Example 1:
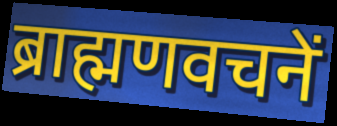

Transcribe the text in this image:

ब्राह्मणवचनें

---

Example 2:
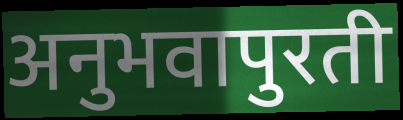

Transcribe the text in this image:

अनुभवापुरती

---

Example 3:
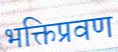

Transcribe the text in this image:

भक्तिप्रवण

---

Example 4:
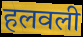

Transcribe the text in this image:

हलवली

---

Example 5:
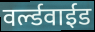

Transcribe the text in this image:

वर्ल्डवाईड